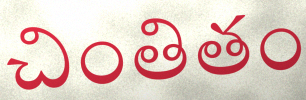
చింతితం